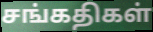
சங்கதிகள்